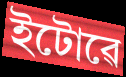
ইটোৱে